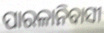
ପାରଳାନିବାସୀ